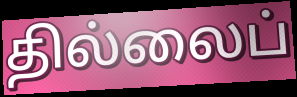
தில்லைப்